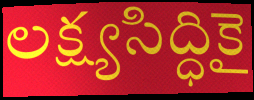
లక్ష్యసిద్ధికై